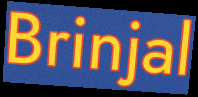
Brinjal